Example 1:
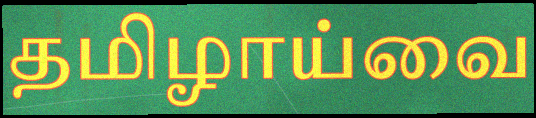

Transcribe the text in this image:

தமிழாய்வை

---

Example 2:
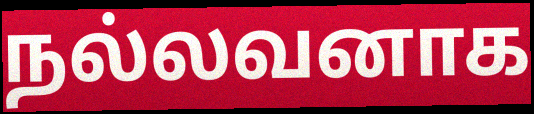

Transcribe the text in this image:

நல்லவனாக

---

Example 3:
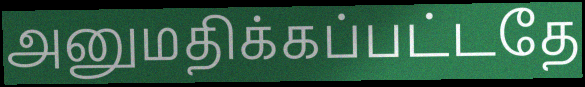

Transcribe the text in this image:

அனுமதிக்கப்பட்டதே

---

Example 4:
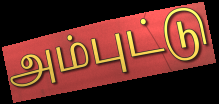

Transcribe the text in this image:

அம்புட்டு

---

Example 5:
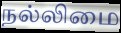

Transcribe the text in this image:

நல்லிமை